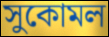
সুকোমল